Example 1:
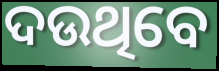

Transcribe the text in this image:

ଦଉଥିବେ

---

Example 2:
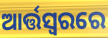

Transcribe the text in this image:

ଆର୍ତ୍ତସ୍ଵରରେ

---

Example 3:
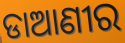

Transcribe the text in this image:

ଡାଆଣୀର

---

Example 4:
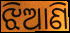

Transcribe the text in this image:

ଝିଆଣି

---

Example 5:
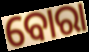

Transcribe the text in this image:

ବୋରା